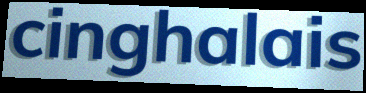
cinghalais